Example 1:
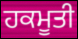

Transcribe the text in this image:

ਹਕਮੂਤੀ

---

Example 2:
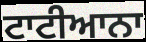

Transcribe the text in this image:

ਟਾਟੀਆਨਾ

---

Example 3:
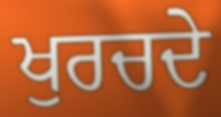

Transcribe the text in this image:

ਖੁਰਚਦੇ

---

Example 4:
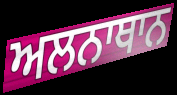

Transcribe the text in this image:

ਅਲਨਾਥਾਨ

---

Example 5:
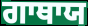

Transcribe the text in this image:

ਗਾਥਾਯ